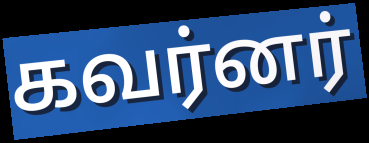
கவர்னர்